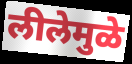
लीलेमुळे